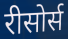
रीसोर्स